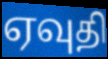
ஏவுதி